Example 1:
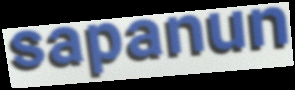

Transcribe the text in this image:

sapanun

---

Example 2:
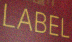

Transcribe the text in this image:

LABEL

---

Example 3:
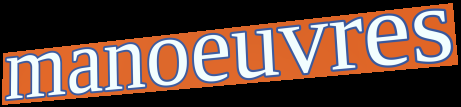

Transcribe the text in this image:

manoeuvres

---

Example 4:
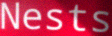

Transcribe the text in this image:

Nests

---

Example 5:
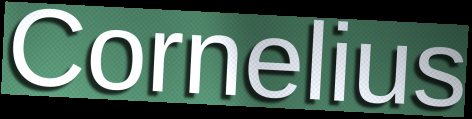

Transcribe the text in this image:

Cornelius